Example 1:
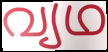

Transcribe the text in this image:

വ്യഥ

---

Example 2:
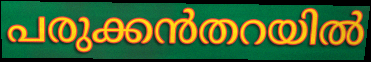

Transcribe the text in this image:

പരുക്കൻതറയിൽ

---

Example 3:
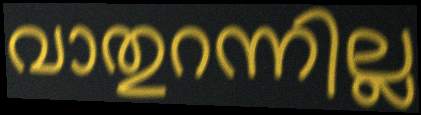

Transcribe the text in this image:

വാതുറന്നില്ല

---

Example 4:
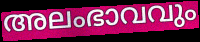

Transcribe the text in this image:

അലംഭാവവും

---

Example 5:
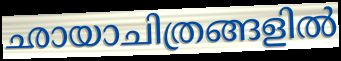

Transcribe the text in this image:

ഛായാചിത്രങ്ങളിൽ